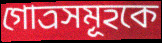
গোত্রসমূহকে